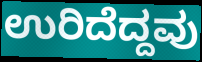
ಉರಿದೆದ್ದವು